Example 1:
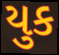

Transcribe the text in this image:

યુક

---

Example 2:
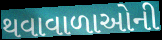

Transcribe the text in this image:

થવાવાળાઓની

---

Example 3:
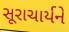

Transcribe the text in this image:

સૂરાચાર્યને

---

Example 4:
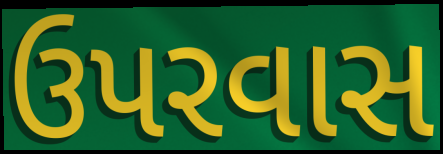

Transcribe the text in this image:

ઉપરવાસ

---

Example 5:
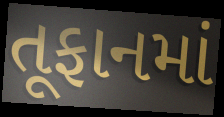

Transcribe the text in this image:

તૂફાનમાં